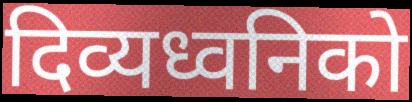
दिव्यध्वनिको